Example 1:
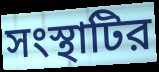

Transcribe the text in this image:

সংস্থাটির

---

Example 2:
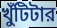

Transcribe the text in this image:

খুঁটিটার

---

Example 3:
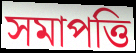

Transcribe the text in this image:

সমাপত্তি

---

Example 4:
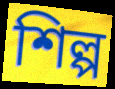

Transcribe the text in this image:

শিল্প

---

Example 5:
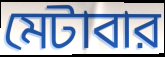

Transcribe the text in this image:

মেটাবার